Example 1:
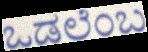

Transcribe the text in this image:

ಒಡಲೆಂಬ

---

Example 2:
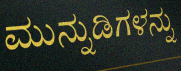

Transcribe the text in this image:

ಮುನ್ನುಡಿಗಳನ್ನು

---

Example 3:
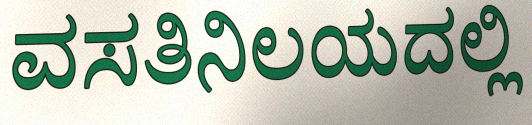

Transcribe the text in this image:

ವಸತಿನಿಲಯದಲ್ಲಿ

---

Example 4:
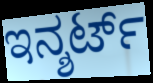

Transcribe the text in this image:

ಇನ್ಶರ್ಟ್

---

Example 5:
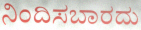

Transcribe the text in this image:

ನಿಂದಿಸಬಾರದು